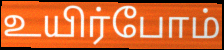
உயிர்போம்